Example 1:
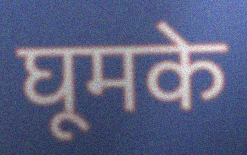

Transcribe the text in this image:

घूमके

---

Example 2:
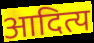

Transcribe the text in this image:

आदित्‍य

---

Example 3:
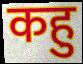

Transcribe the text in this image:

कहु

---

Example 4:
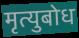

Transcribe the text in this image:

मृत्युबोध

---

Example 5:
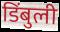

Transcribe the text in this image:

डिंबुली